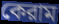
কেরাম